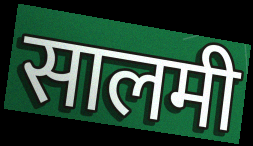
सालमी